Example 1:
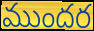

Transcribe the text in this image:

ముందర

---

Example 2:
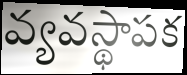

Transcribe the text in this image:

వ్యవస్థాపక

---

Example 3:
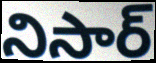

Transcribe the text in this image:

నిసార్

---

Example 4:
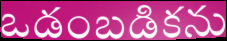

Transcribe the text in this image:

ఒడంబడికను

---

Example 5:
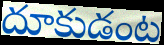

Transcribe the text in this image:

దూకుడంట